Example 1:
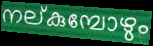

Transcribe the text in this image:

നല്കുമ്പോഴും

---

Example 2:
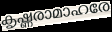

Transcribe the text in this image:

കൃഷ്ണരാമാഹരേ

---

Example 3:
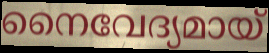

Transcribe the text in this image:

നൈവേദ്യമായ്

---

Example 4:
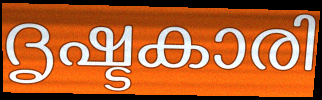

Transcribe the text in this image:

ദൃഷ്ടകാരി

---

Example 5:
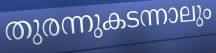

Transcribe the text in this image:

തുരന്നുകടന്നാലും